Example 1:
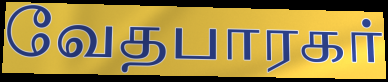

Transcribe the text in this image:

வேதபாரகர்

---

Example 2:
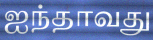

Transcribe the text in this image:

ஐந்தாவது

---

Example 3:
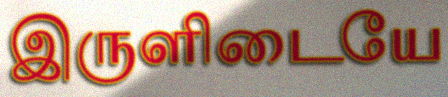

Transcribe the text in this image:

இருளிடையே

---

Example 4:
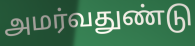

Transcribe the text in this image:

அமர்வதுண்டு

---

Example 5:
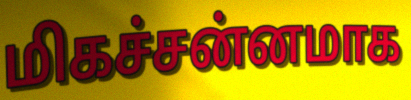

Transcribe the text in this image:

மிகச்சன்னமாக